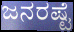
ಜನರಷ್ಟೆ